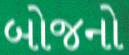
બોજનો